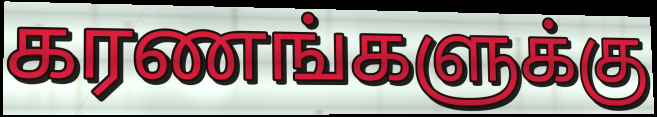
கரணங்களுக்கு